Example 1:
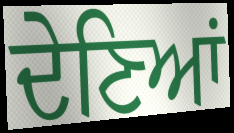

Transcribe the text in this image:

ਦੇਣਿਆਂ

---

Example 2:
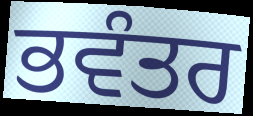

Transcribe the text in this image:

ਭਵੰਤਰ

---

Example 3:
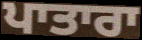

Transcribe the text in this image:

ਪਾਤਾਰਾ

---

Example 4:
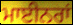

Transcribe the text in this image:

ਮਾਈਨਰਾਂ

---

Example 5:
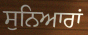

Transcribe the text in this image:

ਸੁਨਿਆਰਾਂ